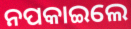
ନପକାଇଲେ